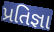
પ્રતિજ્ઞા